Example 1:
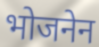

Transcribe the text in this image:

भोजनेन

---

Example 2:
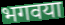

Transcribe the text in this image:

भगवया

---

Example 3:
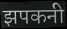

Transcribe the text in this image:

झपकनी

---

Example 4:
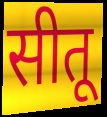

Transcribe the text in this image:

सीतू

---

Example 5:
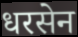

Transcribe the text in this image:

धरसेन